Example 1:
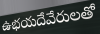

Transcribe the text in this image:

ఉభయదేవేరులతో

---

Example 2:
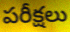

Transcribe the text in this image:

పరీక్షలు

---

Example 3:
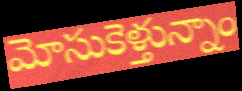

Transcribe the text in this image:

మోసుకెళ్తున్నాం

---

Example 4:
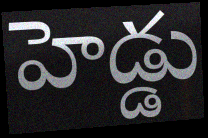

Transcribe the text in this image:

హెడ్డు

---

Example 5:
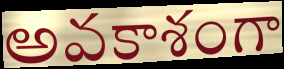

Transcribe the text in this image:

అవకాశంగా